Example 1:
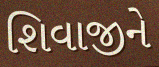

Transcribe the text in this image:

શિવાજીને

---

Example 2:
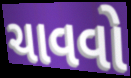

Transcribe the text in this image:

ચાવવો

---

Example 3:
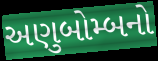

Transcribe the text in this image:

અણુબોમ્બનો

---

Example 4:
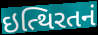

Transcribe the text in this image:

ઇત્થિરતનં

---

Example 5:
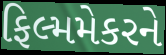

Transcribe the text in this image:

ફિલ્મમેકરને